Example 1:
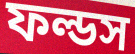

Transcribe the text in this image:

ফল্ডস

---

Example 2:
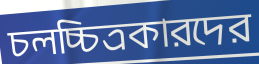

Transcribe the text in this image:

চলচ্চিত্রকারদের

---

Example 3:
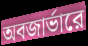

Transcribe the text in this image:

অবজার্ভারে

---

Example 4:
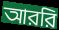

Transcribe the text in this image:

আররি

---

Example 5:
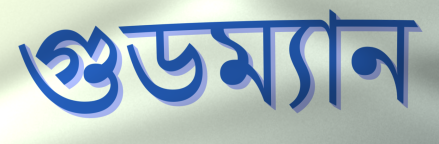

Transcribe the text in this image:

গুডম্যান